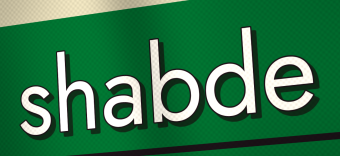
shabde